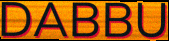
DABBU